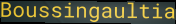
Boussingaultia